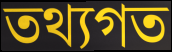
তথ্যগত